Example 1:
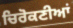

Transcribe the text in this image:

ਚਿਰੋਕਣੀਆਂ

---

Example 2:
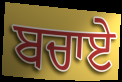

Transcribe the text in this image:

ਬਚਾਏ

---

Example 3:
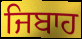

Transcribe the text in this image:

ਜਿਬਾਹ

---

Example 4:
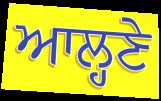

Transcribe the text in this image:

ਆਲ੍ਹਣੇ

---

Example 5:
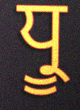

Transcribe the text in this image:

ਧ੍ਰੂ